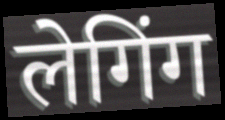
लेगिंग